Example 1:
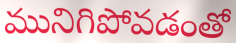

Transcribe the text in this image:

మునిగిపోవడంతో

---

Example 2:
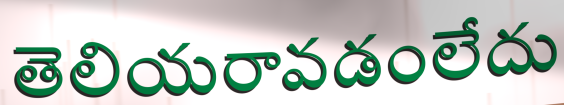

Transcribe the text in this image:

తెలియరావడంలేదు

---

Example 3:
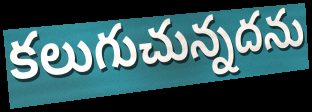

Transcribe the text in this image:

కలుగుచున్నదను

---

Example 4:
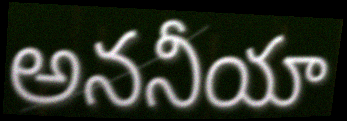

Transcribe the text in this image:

అననీయా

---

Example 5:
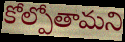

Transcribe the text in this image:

కోల్పోతామని